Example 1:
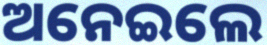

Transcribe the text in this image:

ଅନେଇଲେ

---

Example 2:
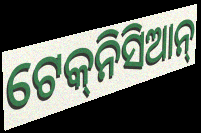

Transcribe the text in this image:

ଟେକ୍‌ନିସିଆନ୍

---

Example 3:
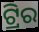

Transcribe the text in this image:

ଟ୍ରିର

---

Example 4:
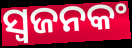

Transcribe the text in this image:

ସ୍ଵଜନକଂ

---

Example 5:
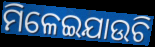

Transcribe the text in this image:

ମିଳେଇଯାଉଚି